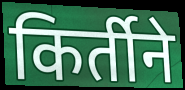
किर्तीने